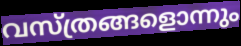
വസ്ത്രങ്ങളൊന്നും